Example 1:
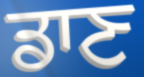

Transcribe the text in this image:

ਡਾਣ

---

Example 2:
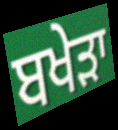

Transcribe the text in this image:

ਬਖੇੜਾ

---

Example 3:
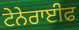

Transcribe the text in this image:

ਟੇਨੇਰਾਈਫ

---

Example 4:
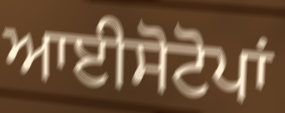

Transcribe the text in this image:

ਆਈਸੋਟੋਪਾਂ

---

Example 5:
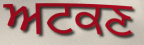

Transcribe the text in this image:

ਅਟਕਣ